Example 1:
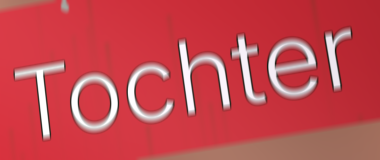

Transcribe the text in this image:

Tochter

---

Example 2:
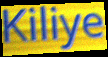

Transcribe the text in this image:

Kiliye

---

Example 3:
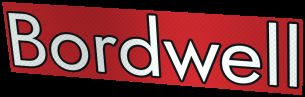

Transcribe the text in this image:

Bordwell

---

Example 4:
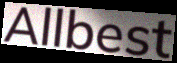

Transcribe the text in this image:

Allbest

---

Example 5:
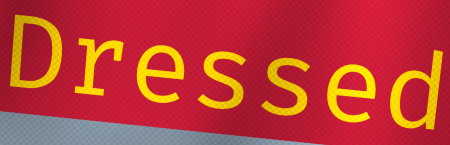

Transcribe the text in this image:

Dressed